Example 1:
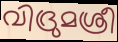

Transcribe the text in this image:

വിദ്രുമശ്രീ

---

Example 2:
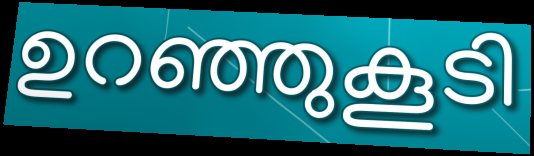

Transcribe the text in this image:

ഉറഞ്ഞുകൂടി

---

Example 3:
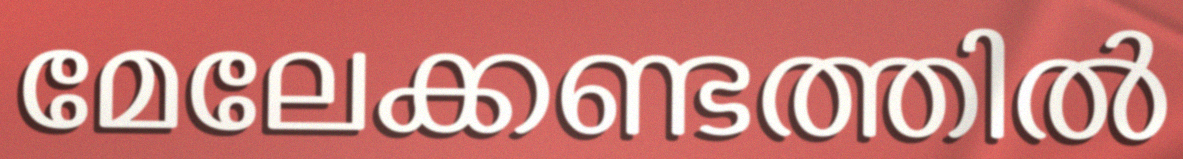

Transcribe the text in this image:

മേലേക്കണ്ടത്തിൽ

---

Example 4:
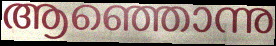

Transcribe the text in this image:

ആഞ്ഞൊന്നു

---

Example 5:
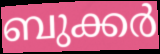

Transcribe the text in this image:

ബുക്കർ